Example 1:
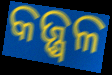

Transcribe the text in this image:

କଜ୍ଜ୍ୱଳ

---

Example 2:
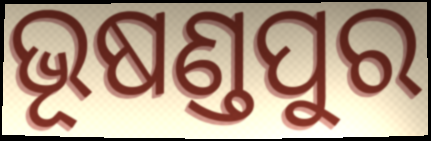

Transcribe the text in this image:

ଭୂଷଣ୍ଡପୁର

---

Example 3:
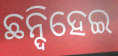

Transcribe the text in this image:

ଛନ୍ଦିହେଇ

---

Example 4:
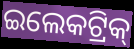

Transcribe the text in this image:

ଇଲେକଟ୍ରିକ୍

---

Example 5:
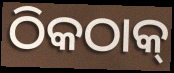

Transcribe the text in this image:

ଠିକଠାକ୍